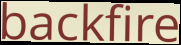
backfire